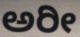
ಅರೀ